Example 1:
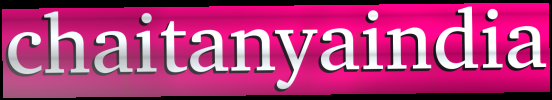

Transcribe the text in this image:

chaitanyaindia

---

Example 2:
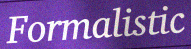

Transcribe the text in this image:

Formalistic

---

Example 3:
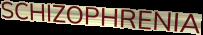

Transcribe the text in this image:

SCHIZOPHRENIA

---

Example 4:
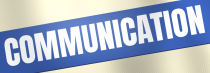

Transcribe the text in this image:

COMMUNICATION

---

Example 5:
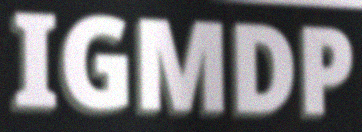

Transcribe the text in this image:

IGMDP